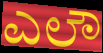
ಎಲೌ